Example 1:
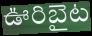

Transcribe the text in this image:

ఊరిబైట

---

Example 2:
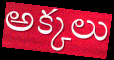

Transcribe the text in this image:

అక్కలు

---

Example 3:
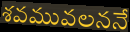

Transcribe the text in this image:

శవమువలననే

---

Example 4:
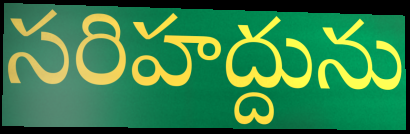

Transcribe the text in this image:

సరిహద్దును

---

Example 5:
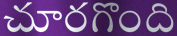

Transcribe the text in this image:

చూరగొంది